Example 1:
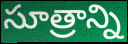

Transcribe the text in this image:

సూత్రాన్ని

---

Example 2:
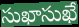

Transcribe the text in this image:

సుఖాసుఖే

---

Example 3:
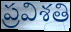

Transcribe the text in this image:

ప్రవిశతి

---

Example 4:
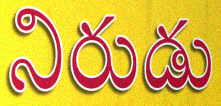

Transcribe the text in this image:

నిరుడు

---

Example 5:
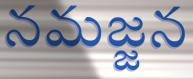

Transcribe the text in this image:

నమజ్జన